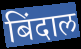
बिंदाल